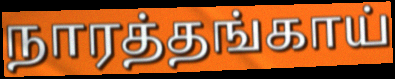
நாரத்தங்காய்